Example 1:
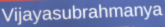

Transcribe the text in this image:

Vijayasubrahmanya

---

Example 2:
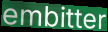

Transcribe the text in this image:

embitter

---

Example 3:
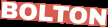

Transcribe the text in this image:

BOLTON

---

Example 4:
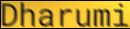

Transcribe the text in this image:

Dharumi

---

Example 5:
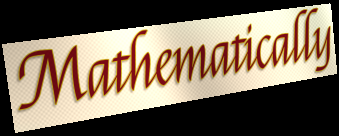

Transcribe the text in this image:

Mathematically